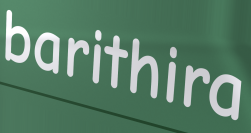
barithira